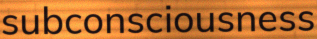
subconsciousness